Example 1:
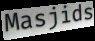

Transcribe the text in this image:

Masjids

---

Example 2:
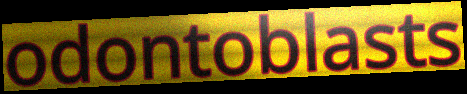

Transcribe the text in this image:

odontoblasts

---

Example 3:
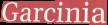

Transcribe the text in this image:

Garcinia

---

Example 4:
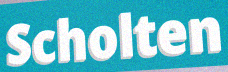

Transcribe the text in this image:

Scholten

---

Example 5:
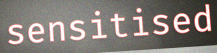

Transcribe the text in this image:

sensitised